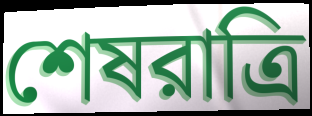
শেষরাত্রি